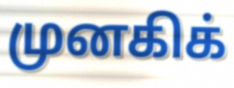
முனகிக்